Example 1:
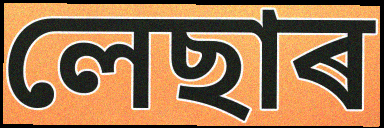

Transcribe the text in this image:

লেছাৰ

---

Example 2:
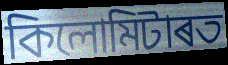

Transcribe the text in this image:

কিলোমিটাৰত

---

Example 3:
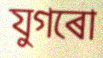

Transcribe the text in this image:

যুগৰো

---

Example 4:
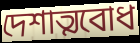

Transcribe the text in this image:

দেশাত্মবোধ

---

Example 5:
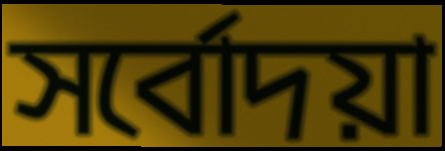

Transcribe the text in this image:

সৰ্বোদয়া